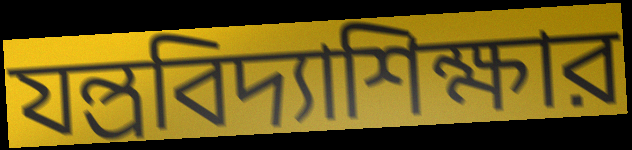
যন্ত্রবিদ্যাশিক্ষার